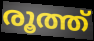
രൂത്ത്